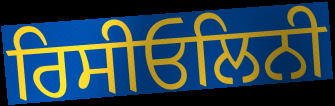
ਰਿਸੀਓਲਿਨੀ